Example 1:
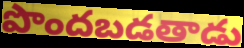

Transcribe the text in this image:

పొందబడతాడు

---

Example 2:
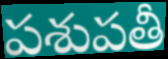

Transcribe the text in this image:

పశుపతీ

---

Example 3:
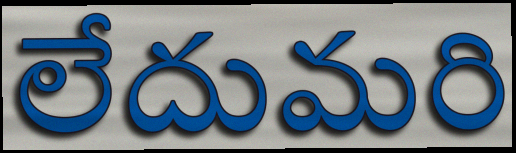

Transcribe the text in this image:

లేదుమరి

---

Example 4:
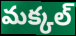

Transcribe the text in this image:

మక్కల్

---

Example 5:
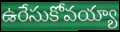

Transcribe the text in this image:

ఉరేసుకోవయ్యా